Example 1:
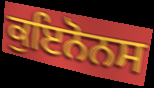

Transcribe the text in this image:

ਕੁਇਨੋਨਸ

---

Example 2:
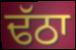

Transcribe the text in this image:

ਢੱਠਾ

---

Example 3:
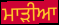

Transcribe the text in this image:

ਮਾੜੀਆ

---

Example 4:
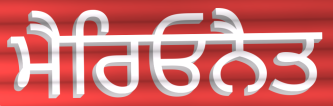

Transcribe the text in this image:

ਮੈਰਿਓਨੈਤ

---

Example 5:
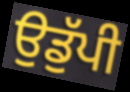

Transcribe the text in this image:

ਉਡੁੱਪੀ